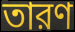
তারণ